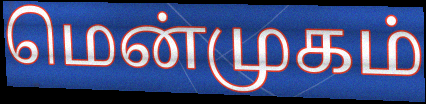
மென்முகம்